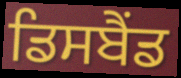
ਡਿਸਬੈਂਡ